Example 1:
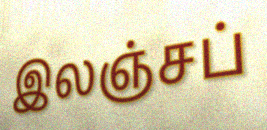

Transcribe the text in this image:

இலஞ்சப்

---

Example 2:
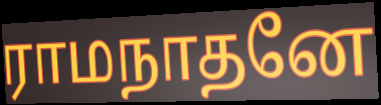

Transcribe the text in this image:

ராமநாதனே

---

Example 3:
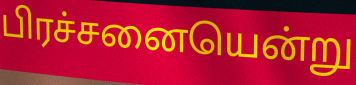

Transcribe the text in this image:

பிரச்சனையென்று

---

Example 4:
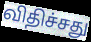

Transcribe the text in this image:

விதிச்சது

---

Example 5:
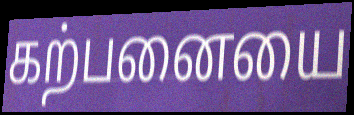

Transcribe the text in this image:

கற்பனையை